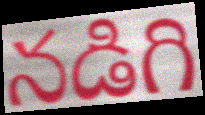
నడిగి